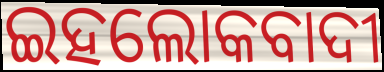
ଇହଲୋକବାଦୀ